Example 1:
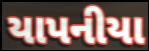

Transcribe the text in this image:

યાપનીયા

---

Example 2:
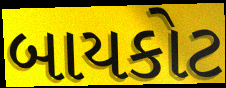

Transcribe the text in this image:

બાયકોટ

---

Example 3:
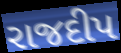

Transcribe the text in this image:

રાજદીપ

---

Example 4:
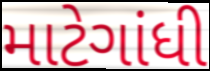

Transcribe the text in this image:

માટેગાંધી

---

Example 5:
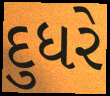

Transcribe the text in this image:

દુધરે